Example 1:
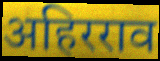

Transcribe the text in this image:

अहिरराव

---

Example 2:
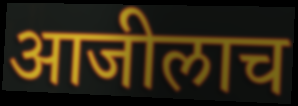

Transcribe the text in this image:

आजीलाच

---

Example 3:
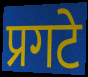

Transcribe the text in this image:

प्रगटे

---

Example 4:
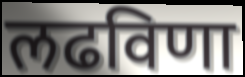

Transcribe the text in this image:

लढविणा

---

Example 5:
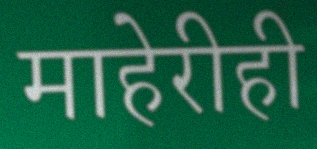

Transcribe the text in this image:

माहेरीही